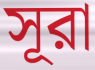
সূরা